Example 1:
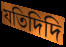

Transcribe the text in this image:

যতিদিদি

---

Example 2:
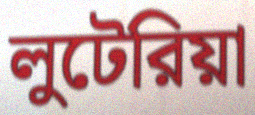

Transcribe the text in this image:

লুটেরিয়া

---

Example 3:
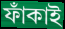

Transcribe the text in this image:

ফাঁকাই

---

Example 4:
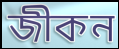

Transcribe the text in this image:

জীকন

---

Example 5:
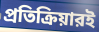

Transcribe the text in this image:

প্রতিক্রিয়ারই